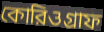
কোরিওগ্রাফ